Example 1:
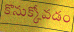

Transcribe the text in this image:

కొనుక్కోవడం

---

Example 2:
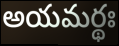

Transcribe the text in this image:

అయమర్థః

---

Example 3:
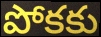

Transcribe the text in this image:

పోకకు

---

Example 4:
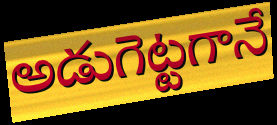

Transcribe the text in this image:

అడుగెట్టగానే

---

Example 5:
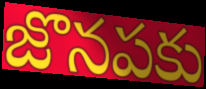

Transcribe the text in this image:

జొనపకు